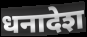
धनादेश